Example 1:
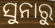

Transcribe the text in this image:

ସୁନାରୁ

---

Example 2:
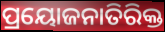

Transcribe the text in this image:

ପ୍ରୟୋଜନାତିରିକ୍ତ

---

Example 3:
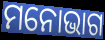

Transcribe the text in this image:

ମନୋଭାଗ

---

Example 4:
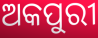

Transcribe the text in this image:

ଅକପୁରୀ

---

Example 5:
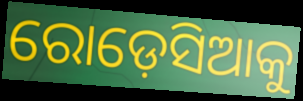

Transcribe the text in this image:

ରୋଡ଼େସିଆକୁ